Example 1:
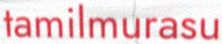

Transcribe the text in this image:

tamilmurasu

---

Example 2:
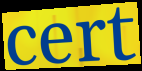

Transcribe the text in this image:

cert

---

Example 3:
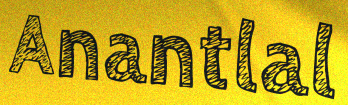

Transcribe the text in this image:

Anantlal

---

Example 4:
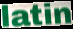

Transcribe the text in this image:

latin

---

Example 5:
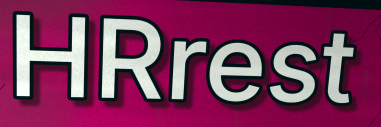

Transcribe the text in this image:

HRrest